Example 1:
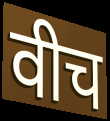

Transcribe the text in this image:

वीच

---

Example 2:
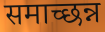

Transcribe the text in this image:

समाच्छन्न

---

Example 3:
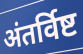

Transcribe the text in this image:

अंतर्विष्ट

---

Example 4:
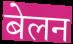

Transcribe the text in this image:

बेलन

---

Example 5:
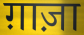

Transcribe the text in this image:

ग़ाज़ा